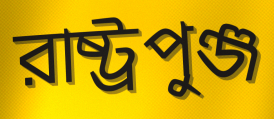
রাষ্ট্রপুঞ্জ